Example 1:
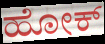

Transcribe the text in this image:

ಹೋಕ್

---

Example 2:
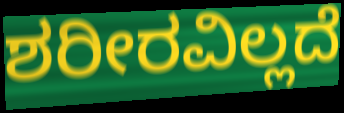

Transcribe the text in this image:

ಶರೀರವಿಲ್ಲದೆ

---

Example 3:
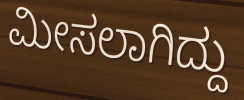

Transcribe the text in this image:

ಮೀಸಲಾಗಿದ್ದು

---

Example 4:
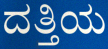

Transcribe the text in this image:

ದತ್ತಿಯ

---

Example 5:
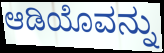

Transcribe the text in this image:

ಆಡಿಯೊವನ್ನು